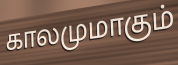
காலமுமாகும்